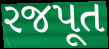
રજપૂત